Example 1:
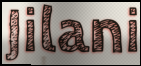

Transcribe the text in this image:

Jilani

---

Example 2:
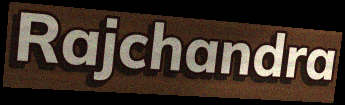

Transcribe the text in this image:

Rajchandra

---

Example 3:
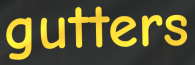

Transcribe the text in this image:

gutters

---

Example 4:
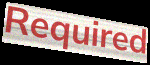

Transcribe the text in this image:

Required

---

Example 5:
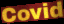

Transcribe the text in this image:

Covid